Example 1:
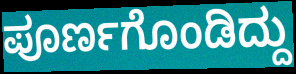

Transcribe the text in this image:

ಪೂರ್ಣಗೊಂಡಿದ್ದು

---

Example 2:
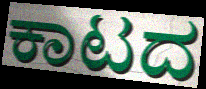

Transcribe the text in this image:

ಕಾಟದ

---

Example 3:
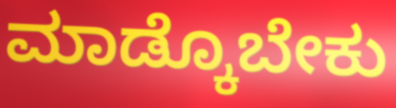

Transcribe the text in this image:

ಮಾಡ್ಕೊಬೇಕು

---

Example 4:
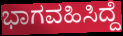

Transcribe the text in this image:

ಭಾಗವಹಿಸಿದ್ದೆ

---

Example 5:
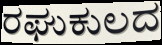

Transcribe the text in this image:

ರಘುಕುಲದ